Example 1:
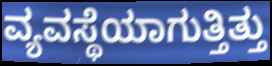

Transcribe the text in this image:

ವ್ಯವಸ್ಥೆಯಾಗುತ್ತಿತ್ತು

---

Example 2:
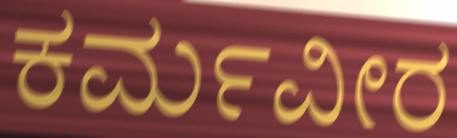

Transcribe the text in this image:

ಕರ್ಮವೀರ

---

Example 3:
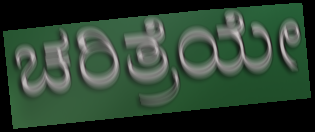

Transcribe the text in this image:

ಚರಿತ್ರೆಯೇ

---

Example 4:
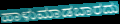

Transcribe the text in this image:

ಹಾಳುಮಾಡಬಾರದು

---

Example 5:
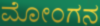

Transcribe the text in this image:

ಮೋಂಗನ